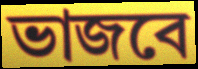
ভাজবে